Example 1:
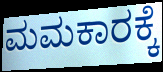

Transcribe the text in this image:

ಮಮಕಾರಕ್ಕೆ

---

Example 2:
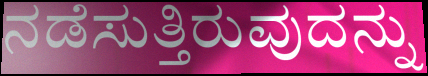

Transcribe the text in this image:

ನಡೆಸುತ್ತಿರುವುದನ್ನು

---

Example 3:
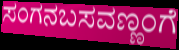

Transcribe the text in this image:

ಸಂಗನಬಸವಣ್ಣಂಗೆ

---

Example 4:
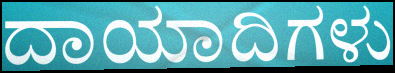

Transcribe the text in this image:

ದಾಯಾದಿಗಳು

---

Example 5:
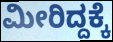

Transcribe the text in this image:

ಮೀರಿದ್ದಕ್ಕೆ